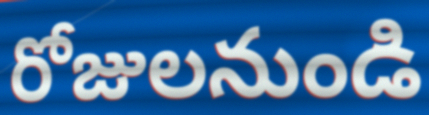
రోజులనుండి